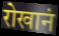
रोखानं